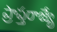
ప్రాప్తరాజ్యే